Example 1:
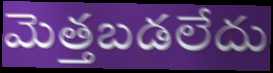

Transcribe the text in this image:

మెత్తబడలేదు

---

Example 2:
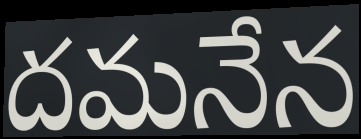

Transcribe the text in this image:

దమనేన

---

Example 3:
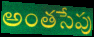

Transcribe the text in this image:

అంతసేపు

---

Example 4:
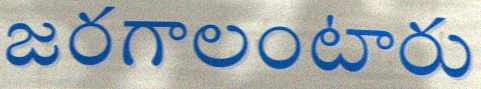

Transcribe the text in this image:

జరగాలంటారు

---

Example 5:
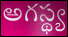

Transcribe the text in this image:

అగస్థ్య